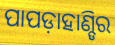
ପାପଡ଼ାହାଣ୍ଡିର